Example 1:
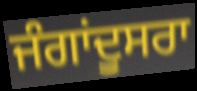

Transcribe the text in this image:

ਜੰਗਾਂਦੂਸਰਾ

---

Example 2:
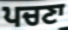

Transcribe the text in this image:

ਪਚਣਾ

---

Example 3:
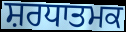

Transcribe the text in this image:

ਸ਼ਰਧਾਤਮਕ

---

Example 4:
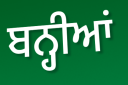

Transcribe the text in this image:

ਬਨ੍ਹੀਆਂ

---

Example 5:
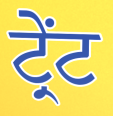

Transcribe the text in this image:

ਟ੍ਰੇਂਟ